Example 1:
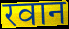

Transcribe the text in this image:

रवान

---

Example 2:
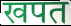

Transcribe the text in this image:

खपत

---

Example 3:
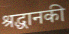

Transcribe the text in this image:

श्रद्धानकी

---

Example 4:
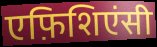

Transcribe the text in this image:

एफ़िशिएंसी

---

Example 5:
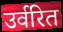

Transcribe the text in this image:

उर्वरित